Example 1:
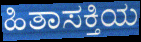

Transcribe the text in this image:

ಹಿತಾಸಕ್ತಿಯ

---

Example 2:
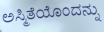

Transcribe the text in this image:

ಅಸ್ಮಿತೆಯೊಂದನ್ನು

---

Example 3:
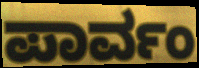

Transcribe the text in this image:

ಪಾರ್ವಂ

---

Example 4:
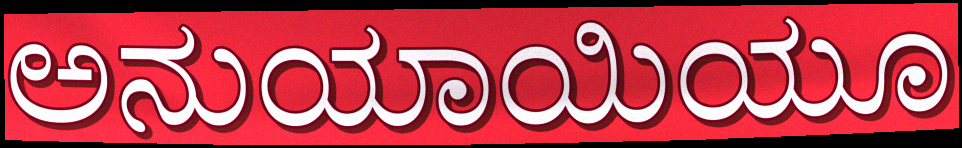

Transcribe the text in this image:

ಅನುಯಾಯಿಯೂ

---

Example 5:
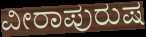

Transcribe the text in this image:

ವೀರಾಪುರುಷ